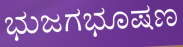
ಭುಜಗಭೂಷಣ